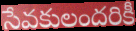
సేవకులందరికీ